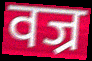
वज्र